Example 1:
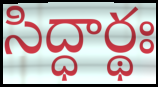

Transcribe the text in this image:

సిద్ధార్థః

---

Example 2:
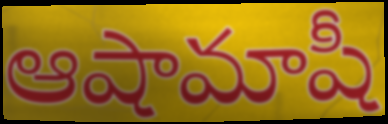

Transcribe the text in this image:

ఆషామాషీ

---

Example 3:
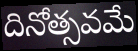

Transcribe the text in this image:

దినోత్సవమే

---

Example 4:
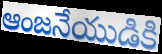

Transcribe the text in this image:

ఆంజనేయుడికి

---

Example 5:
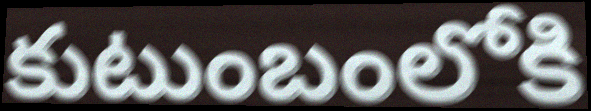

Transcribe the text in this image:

కుటుంబంలోకి